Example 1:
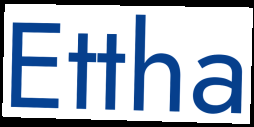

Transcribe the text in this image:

Ettha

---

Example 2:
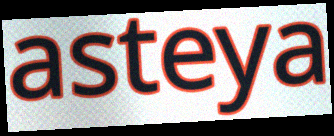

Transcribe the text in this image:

asteya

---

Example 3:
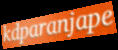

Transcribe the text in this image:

kdparanjape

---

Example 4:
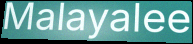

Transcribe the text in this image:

Malayalee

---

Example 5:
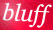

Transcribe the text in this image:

bluff